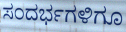
ಸಂದರ್ಭಗಳಿಗೂ